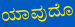
ಯಾವುದೊ